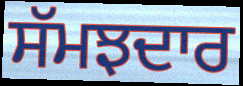
ਸੱਮਝਦਾਰ